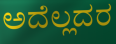
ಅದೆಲ್ಲದರ